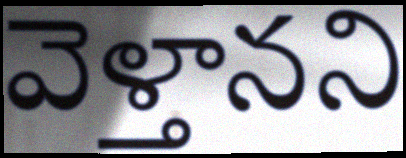
వెళ్తానని